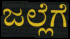
ಜಲ್ಲೆಗೆ